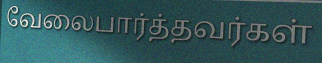
வேலைபார்த்தவர்கள்